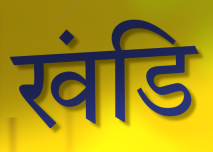
खंडि